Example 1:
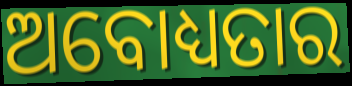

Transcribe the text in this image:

ଅବୋଧ୍ୟତାର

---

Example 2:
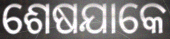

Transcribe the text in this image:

ଶେଷଯାକେ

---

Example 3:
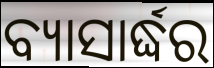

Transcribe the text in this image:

ବ୍ୟାସାର୍ଦ୍ଧର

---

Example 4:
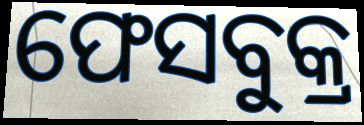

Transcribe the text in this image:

ଫେସବୁକ୍ର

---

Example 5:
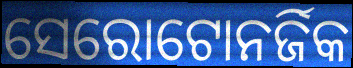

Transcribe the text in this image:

ସେରୋଟୋନର୍ଜିକ